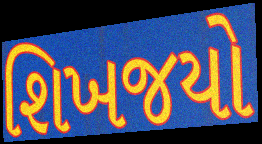
શિખજયો